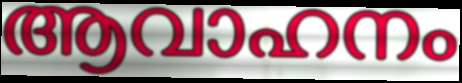
ആവാഹനം